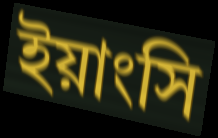
ইয়াংসি